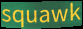
squawk